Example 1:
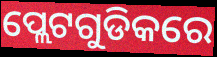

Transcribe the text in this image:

ପ୍ଲେଟଗୁଡିକରେ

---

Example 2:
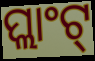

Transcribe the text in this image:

ପ୍ଲାଂଟ୍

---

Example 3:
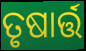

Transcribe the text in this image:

ତୃଷାର୍ତ୍ତ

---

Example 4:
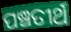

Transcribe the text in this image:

ପଞ୍ଚତୀର୍ଥ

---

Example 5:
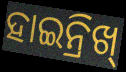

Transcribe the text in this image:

ହାଇନ୍ରିଖ୍